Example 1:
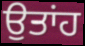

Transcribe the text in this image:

ਉਤਾਂਹ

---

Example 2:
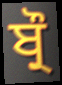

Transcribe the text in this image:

ਬ੍ਰੌ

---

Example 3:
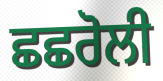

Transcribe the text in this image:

ਛਛਰੋਲੀ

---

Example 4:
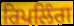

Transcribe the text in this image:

ਰਿਪਲਿੰਗ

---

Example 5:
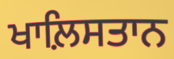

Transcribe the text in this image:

ਖਾਲ਼ਿਸਤਾਨ